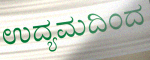
ಉದ್ಯಮದಿಂದ